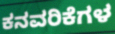
ಕನವರಿಕೆಗಳ